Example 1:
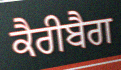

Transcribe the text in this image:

ਕੈਰੀਬੈਗ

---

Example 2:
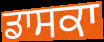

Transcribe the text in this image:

ਡਾਸਕਾ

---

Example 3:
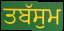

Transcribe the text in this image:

ਤਬੱਸੁਮ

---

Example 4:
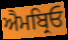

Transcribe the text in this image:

ਐਮਬ੍ਰਿਓ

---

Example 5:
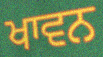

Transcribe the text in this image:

ਖਾਵਨ